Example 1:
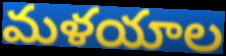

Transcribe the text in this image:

మళయాల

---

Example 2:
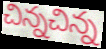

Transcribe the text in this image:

చిన్నచిన్న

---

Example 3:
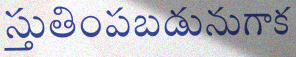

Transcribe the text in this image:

స్తుతింపబడునుగాక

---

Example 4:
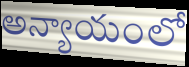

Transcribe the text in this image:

అన్యాయంలో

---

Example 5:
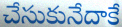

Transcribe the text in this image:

చేసుకునేదాకే